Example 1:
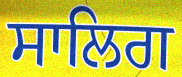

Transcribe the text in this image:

ਸਾਲਿਗ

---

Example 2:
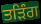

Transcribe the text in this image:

ਤੜਿੰਗ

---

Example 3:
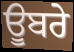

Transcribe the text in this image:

ਊਬਰੇ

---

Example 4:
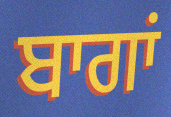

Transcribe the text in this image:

ਬਾਗਾਂ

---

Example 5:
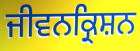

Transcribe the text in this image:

ਜੀਵਨਕ੍ਰਿਸ਼ਨ